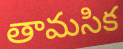
తామసిక